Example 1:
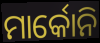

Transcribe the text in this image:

ମାର୍କୋନି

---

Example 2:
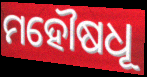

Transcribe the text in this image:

ମହୌଷଧୂ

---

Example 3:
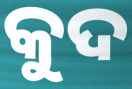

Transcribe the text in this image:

କୁଦ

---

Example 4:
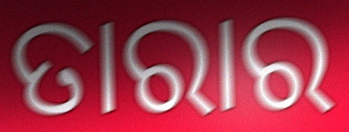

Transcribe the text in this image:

ତାରାର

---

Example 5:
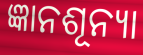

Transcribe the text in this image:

ଜ୍ଞାନଶୂନ୍ୟା